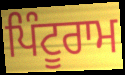
ਪਿੰਟੂਰਾਮ